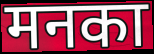
मनका